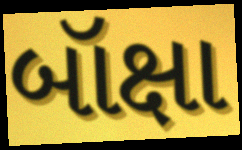
બૉક્ષા